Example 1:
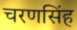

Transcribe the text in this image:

चरणसिंह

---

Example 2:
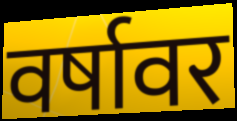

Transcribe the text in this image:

वर्षावर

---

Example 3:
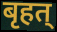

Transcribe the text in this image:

बृहत्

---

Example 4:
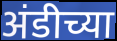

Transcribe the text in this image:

अंडीच्या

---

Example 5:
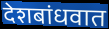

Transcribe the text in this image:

देशबांधवात